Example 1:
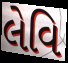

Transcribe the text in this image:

લેવિ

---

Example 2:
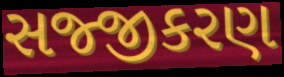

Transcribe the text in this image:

સજ્જીકરણ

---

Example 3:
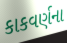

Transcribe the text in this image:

કાકવર્ણના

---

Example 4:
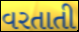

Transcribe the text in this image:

વરતાતી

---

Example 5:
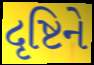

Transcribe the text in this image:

દૃષ્ટિને